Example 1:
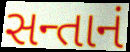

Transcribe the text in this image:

સન્તાનં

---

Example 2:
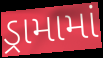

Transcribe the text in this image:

ડ્રામામાં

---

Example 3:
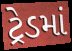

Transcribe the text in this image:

ટ્રેડમાં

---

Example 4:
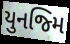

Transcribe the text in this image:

યુનજ્મિ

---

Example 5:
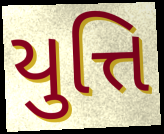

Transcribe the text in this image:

યુત્તિ